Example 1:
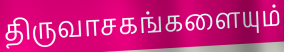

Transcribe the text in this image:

திருவாசகங்களையும்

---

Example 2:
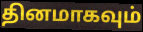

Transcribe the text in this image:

தினமாகவும்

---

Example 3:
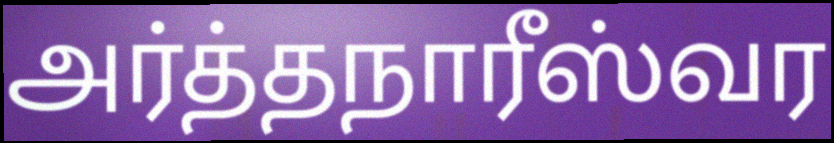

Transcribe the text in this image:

அர்த்தநாரீஸ்வர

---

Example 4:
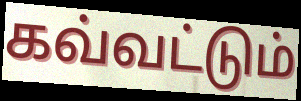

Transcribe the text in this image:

கவ்வட்டும்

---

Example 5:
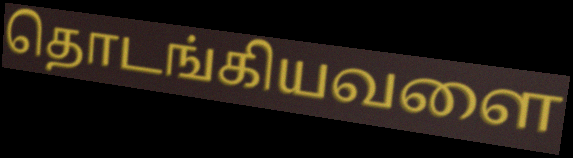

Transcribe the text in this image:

தொடங்கியவளை